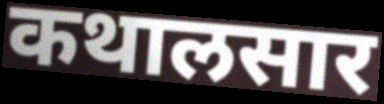
कथालसार